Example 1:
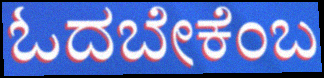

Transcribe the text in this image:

ಓದಬೇಕೆಂಬ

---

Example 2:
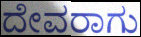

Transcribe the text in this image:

ದೇವರಾಗು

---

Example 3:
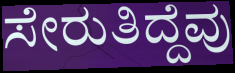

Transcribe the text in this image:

ಸೇರುತಿದ್ದೆವು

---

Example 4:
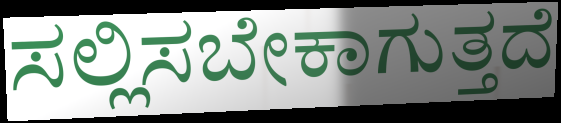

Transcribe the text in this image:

ಸಲ್ಲಿಸಬೇಕಾಗುತ್ತದೆ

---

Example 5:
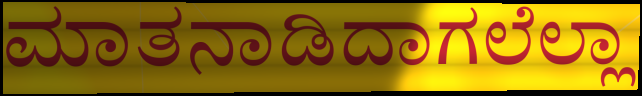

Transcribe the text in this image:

ಮಾತನಾಡಿದಾಗಲೆಲ್ಲಾ